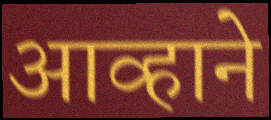
आव्हाने